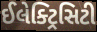
ઈલેક્ટ્રિસિટી